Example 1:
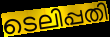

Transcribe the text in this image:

ടെലിപ്പതി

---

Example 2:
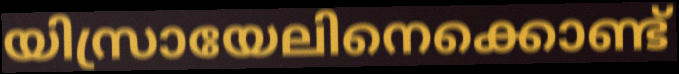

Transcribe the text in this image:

യിസ്രായേലിനെക്കൊണ്ട്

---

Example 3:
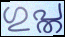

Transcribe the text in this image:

ഗുപ്ത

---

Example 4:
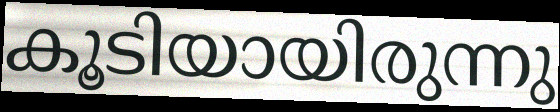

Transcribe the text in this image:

കൂടിയായിരുന്നു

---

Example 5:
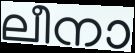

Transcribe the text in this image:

ലീനാ